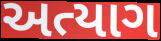
અત્યાગ